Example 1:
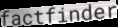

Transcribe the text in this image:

factfinder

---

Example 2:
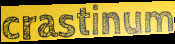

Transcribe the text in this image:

crastinum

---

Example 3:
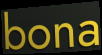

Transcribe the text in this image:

bona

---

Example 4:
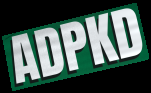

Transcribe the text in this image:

ADPKD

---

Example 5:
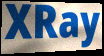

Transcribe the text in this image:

XRay